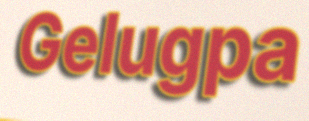
Gelugpa